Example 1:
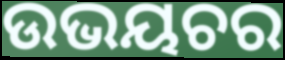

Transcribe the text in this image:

ଉଭୟଚର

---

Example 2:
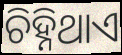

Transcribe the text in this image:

ଚିହ୍ନିଥାଏ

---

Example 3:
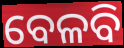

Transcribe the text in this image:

ବେଳବି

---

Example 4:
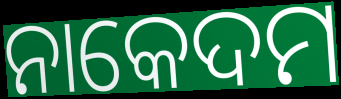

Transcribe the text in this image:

ନାକେଦମ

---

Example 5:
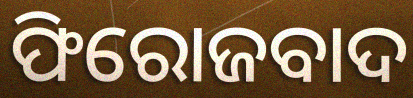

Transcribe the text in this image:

ଫିରୋଜବାଦ